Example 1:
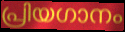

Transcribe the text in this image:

പ്രിയഗാനം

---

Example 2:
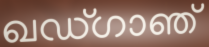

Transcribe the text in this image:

ഖഡ്ഗാഞ്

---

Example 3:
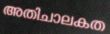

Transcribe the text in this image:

അതിചാലകത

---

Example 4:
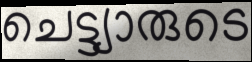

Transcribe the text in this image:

ചെട്ട്യാരുടെ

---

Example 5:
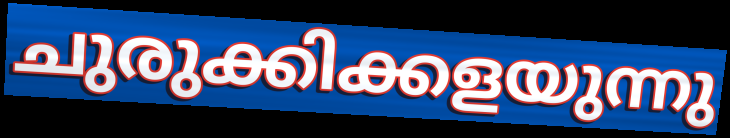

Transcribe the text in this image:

ചുരുക്കിക്കളയുന്നു